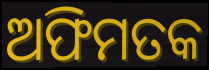
ଅଫିମତକ